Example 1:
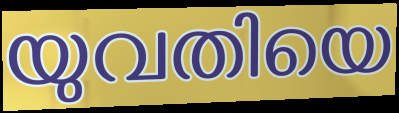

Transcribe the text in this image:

യുവതിയെ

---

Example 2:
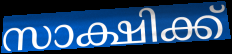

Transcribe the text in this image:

സാക്ഷിക്ക്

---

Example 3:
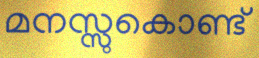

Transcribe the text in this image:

മനസ്സുകൊണ്ട്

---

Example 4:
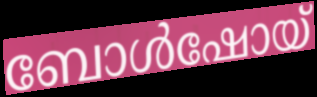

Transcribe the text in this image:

ബോൾഷോയ്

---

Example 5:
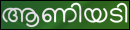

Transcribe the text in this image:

ആണിയടി